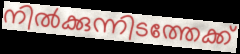
നിൽക്കുന്നിടത്തേക്ക്